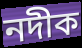
নদীক